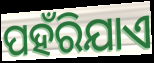
ପହଁରିଯାଏ